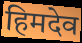
हिमदेव